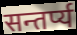
सन्तर्प्य